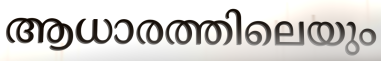
ആധാരത്തിലെയും